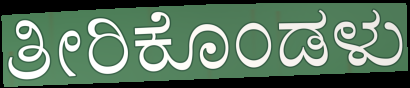
ತೀರಿಕೊಂಡಳು